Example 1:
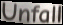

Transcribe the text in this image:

Unfall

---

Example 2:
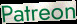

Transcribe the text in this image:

Patreon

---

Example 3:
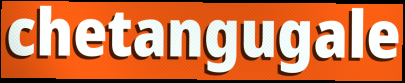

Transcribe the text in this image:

chetangugale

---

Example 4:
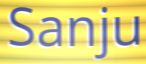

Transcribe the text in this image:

Sanju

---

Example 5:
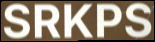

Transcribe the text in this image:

SRKPS